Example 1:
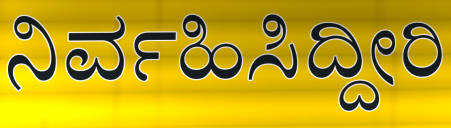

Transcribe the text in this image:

ನಿರ್ವಹಿಸಿದ್ದೀರಿ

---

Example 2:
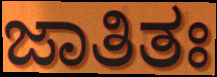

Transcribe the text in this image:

ಜಾತಿತಃ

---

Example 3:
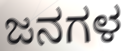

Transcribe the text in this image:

ಜನಗಳ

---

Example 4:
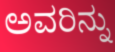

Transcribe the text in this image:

ಅವರಿನ್ನು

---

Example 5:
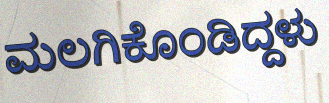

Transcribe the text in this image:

ಮಲಗಿಕೊಂಡಿದ್ದಳು